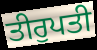
ਤੀਰੁਪਤੀ